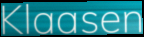
Klaasen